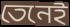
তেনেই